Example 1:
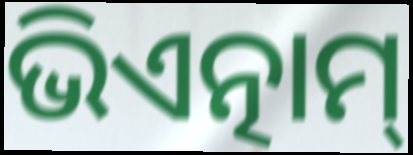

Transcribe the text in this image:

ଭିଏତ୍ନାମ୍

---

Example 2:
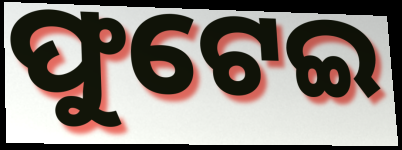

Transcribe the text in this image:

ଫୁଟେଇ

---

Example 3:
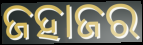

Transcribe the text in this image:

ଜହାଜର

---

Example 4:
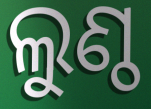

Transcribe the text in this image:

ଲୁଣ୍ଠ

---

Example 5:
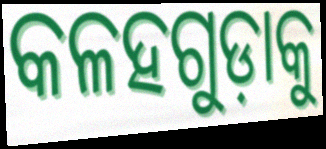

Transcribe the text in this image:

କଳହଗୁଡ଼ାକୁ